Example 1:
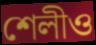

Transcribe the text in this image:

শেলীও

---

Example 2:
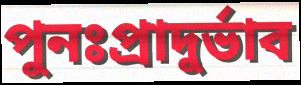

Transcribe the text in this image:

পুনঃপ্রাদুর্ভাব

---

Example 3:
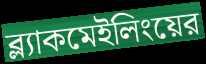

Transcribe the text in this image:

ব্ল্যাকমেইলিংয়ের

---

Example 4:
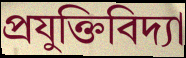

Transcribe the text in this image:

প্রযুক্তিবিদ্যা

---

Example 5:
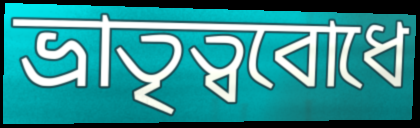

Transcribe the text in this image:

ভ্রাতৃত্ববোধে